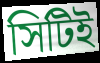
সিটিই